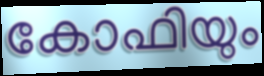
കോഫിയും